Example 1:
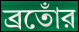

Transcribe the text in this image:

ব্রতোঁর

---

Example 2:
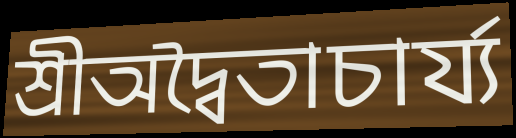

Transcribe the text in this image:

শ্রীঅদ্বৈতাচার্য্য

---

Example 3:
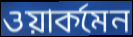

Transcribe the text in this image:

ওয়ার্কমেন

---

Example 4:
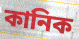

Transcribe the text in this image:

কানিক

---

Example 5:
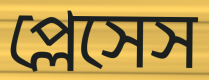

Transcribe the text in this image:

প্লেসেস